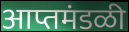
आप्तमंडळी